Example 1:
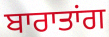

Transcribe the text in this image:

ਬਾਰਾਤਾਂਗ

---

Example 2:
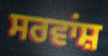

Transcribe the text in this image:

ਸਰਵਾਂਸ਼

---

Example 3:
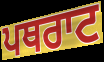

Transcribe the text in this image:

ਪਥਰਾਟ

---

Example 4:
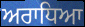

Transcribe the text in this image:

ਅਰਾਧਿਆ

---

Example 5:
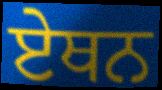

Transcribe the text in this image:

ਏਥਨ